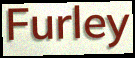
Furley